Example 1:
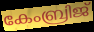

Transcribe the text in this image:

കേംബ്രിജ്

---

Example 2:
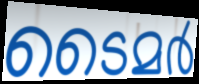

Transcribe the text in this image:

ടൈമർ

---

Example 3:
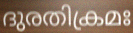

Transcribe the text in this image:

ദുരതിക്രമഃ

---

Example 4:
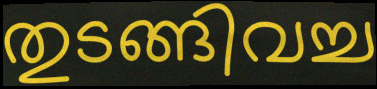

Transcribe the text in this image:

തുടങ്ങിവച്ച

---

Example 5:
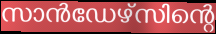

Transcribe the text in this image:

സാൻഡേഴ്സിന്റെ